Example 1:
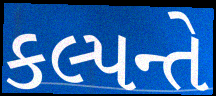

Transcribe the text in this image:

કલ્પન્તે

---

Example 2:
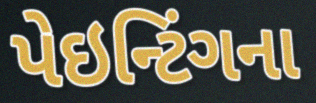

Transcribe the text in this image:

પેઇન્ટિંગના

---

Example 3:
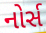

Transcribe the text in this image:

નોર્સ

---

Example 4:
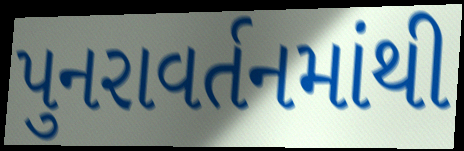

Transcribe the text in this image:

પુનરાવર્તનમાંથી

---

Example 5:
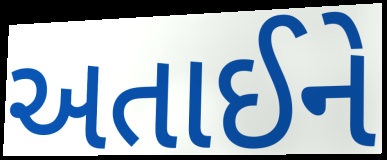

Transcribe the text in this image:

અતાઈને